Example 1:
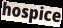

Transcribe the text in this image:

hospice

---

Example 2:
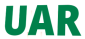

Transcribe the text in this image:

UAR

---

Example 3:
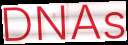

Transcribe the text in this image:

DNAs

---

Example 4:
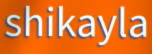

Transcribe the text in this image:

shikayla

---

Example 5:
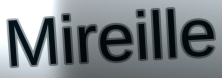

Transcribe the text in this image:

Mireille